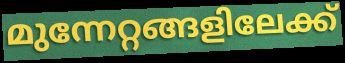
മുന്നേറ്റങ്ങളിലേക്ക്